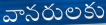
వానరులకు